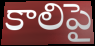
కాలిపై